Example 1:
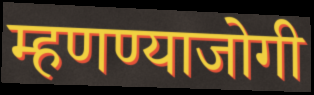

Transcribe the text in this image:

म्हणण्याजोगी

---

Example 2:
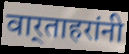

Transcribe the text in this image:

वार्ताहरांनी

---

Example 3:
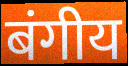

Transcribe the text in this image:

बंगीय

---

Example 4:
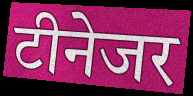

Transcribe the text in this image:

टीनेजर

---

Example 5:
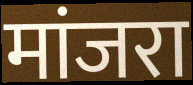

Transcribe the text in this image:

मांजरा